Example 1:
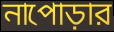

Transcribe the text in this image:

নাপোড়ার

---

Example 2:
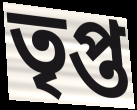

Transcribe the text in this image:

তৃপ্ত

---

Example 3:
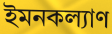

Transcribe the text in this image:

ইমনকল্যাণ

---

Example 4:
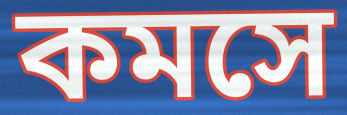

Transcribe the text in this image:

কমসে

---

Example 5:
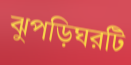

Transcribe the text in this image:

ঝুপড়িঘরটি